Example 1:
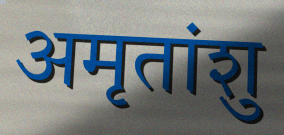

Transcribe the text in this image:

अमृतांशु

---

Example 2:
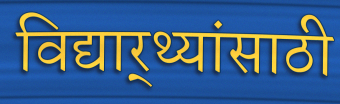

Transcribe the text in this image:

विद्यार्थ्यांसाठी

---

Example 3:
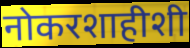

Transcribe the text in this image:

नोकरशाहीशी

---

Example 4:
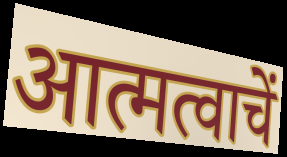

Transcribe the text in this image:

आत्मत्वाचें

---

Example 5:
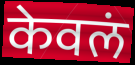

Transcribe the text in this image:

केवलं